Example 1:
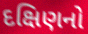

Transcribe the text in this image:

દક્ષિણનો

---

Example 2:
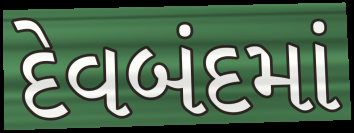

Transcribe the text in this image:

દેવબંદમાં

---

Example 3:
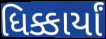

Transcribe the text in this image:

ધિક્કાર્યાં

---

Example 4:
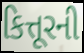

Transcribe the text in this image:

કિત્તૂરની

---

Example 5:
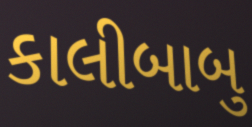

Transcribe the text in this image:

કાલીબાબુ